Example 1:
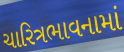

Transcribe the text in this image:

ચારિત્રભાવનામાં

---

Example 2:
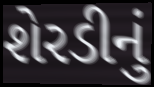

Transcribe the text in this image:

શેરડીનું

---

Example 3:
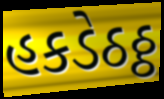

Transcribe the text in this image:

હકડેઠઠ્ઠ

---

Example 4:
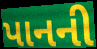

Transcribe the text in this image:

પાનની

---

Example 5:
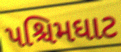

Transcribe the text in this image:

પશ્ચિમઘાટ